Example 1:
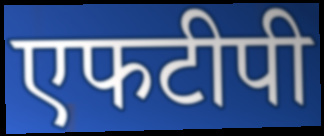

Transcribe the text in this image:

एफटीपी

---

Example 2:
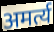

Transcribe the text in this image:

अमर्त्य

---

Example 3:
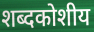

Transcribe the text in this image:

शब्दकोशीय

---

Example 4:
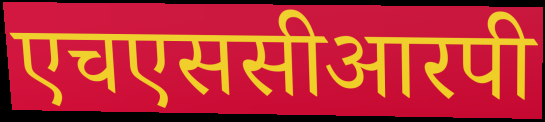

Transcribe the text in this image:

एचएससीआरपी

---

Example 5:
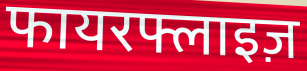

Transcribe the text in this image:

फायरफ्लाइज़